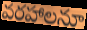
వరహాలనూ